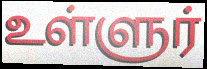
உள்ளுர்